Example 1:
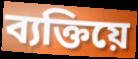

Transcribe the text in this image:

ব্যক্তিয়ে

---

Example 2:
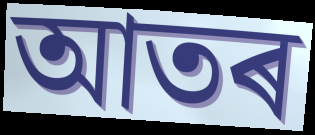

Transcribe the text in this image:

আতৰ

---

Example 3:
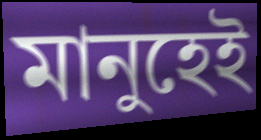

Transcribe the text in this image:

মানুহেই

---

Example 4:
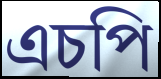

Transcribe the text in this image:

এচপি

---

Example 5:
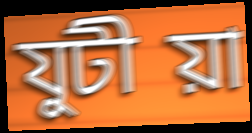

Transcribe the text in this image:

যুটীয়া